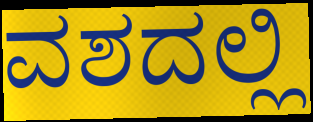
ವಶದಲ್ಲಿ